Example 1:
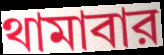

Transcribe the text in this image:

থামাবার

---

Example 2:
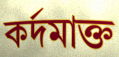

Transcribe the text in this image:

কর্দমাক্ত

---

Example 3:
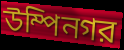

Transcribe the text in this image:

উম্পিনগর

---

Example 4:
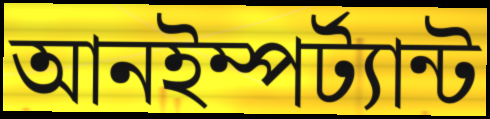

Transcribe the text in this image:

আনইম্পর্ট্যান্ট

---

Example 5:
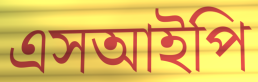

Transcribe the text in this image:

এসআইপি